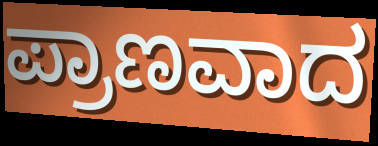
ಪ್ರಾಣವಾದ